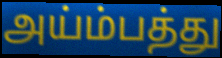
அய்ம்பத்து